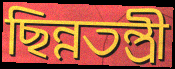
ছিন্নতন্ত্রী